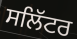
ਸਲਿੱਟਰ